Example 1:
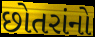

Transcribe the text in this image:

છોતરાંનો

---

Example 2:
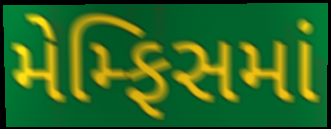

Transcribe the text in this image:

મેમ્ફિસમાં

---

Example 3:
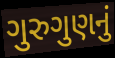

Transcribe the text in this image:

ગુરુગુણનું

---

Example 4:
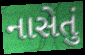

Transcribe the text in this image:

નાસેતું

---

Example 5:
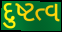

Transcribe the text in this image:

દુષ્ટત્વ